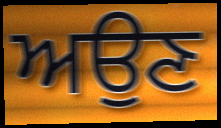
ਅਉਣ